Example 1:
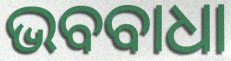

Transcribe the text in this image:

ଭବବାଧା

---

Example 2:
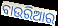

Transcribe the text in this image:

ବାଉରିଆର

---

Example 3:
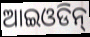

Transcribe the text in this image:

ଆଇଓଡିନ୍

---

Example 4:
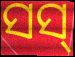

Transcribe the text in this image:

ସସ୍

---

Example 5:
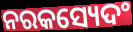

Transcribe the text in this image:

ନରକସ୍ୟେଦଂ